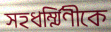
সহধর্ম্মিণীকে